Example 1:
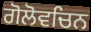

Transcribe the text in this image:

ਗੋਲੋਵਚਿਨ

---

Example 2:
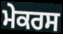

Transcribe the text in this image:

ਮੇਕਰਸ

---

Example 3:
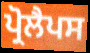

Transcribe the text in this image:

ਪ੍ਰੋਲੈਪਸ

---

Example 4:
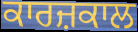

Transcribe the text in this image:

ਕਾਰਜ਼ਕਾਲ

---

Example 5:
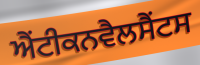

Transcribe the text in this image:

ਐਂਟੀਕਨਵੈਲਸੈਂਟਸ